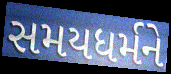
સમયધર્મને